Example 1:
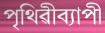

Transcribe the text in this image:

পৃথিৱীব্যাপী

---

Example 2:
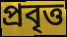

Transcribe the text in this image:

প্ৰবৃত্ত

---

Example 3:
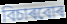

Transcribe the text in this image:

বিচাৰবোৰ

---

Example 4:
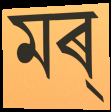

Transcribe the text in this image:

মৰ্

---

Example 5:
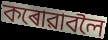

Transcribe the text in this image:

কৰোৱাবলৈ